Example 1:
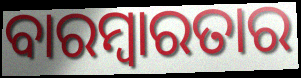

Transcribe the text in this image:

ବାରମ୍ବାରତାର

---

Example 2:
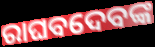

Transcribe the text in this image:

ରାଘବଦେବଙ୍କ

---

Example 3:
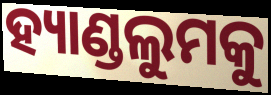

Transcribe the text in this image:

ହ୍ୟାଣ୍ଡଲୁମକୁ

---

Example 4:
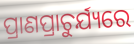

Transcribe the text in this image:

ପ୍ରାଣପ୍ରାଚୁର୍ଯ୍ୟରେ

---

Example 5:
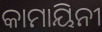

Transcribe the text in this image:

କାମାୟିନୀ